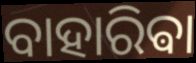
ବାହାରିଵା